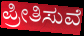
ಪ್ರೀತಿಸುವೆ